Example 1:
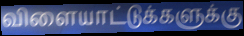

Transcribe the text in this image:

விளையாட்டுக்களுக்கு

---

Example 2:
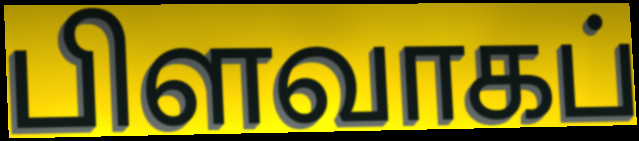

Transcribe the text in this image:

பிளவாகப்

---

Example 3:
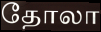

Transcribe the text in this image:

தோலா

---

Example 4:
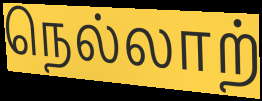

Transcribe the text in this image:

நெல்லாற்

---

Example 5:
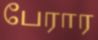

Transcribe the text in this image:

பேரார